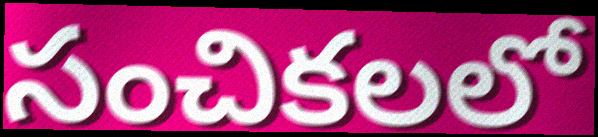
సంచికలలో